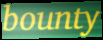
bounty